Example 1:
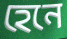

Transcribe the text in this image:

হেনে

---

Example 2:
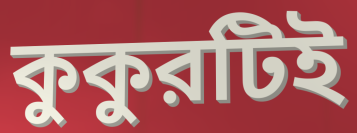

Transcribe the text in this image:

কুকুরটিই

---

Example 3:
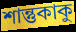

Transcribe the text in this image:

শান্তুকাকু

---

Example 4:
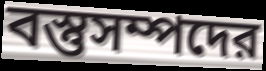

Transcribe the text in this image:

বস্তুসম্পদের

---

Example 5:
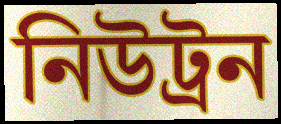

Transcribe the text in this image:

নিউট্রন